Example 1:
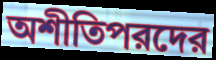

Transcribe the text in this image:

অশীতিপরদের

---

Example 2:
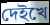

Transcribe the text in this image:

দেইখে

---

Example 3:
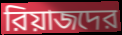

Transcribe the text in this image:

রিয়াজদের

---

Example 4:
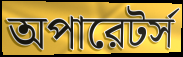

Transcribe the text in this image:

অপারেটর্স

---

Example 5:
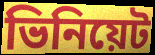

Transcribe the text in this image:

ভিনিয়েট